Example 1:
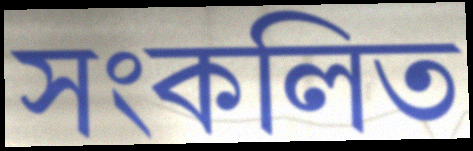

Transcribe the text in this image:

সংকলিত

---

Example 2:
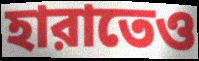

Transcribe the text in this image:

হারাতেও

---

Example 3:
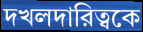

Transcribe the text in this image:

দখলদারিত্বকে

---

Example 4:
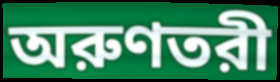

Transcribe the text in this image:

অরুণতরী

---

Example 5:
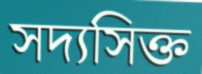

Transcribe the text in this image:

সদ্যসিক্ত